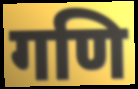
गणि